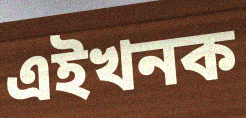
এইখনক